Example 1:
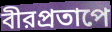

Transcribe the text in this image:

বীরপ্রতাপে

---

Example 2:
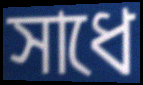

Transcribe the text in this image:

সাধে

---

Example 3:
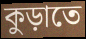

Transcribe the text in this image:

কুড়াতে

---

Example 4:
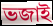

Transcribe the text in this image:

ভজাই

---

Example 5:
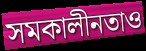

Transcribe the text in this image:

সমকালীনতাও